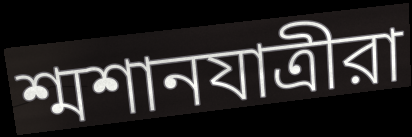
শ্মশানযাত্রীরা